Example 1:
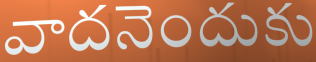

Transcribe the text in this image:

వాదనెందుకు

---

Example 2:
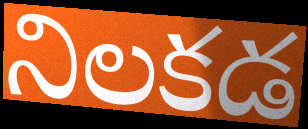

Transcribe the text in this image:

నిలకడ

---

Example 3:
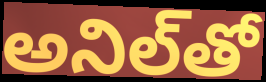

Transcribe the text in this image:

అనిల్‌తో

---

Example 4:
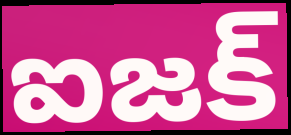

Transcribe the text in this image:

ఐజక్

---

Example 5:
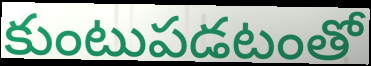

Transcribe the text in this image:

కుంటుపడటంతో